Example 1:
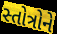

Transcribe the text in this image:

સ્તોત્રોને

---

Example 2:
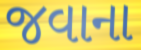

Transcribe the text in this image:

જવાના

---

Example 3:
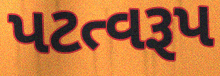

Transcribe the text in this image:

પટત્વરૂપ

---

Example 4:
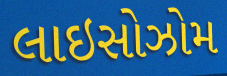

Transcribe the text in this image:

લાઇસોઝોમ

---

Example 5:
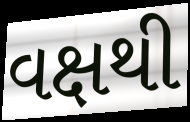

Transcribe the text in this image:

વક્ષથી